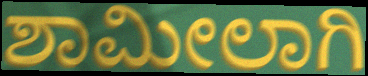
ಶಾಮೀಲಾಗಿ